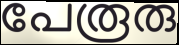
പേരൂരു